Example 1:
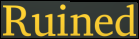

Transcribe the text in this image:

Ruined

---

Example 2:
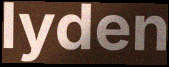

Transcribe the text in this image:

lyden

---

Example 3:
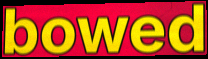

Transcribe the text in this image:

bowed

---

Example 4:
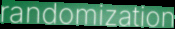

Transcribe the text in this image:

randomization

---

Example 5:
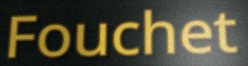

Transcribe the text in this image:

Fouchet